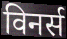
विनर्स